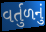
વર્તુળનું